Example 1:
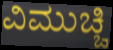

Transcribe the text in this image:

ವಿಮುಚ್ಚಿ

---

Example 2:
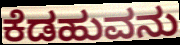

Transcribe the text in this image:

ಕೆಡಹುವನು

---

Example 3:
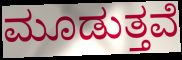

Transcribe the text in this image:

ಮೂಡುತ್ತವೆ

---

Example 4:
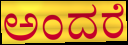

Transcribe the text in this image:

ಅಂದರೆ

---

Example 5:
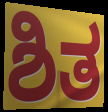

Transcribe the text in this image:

ಶಿತ